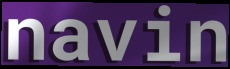
navin